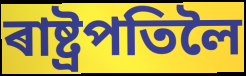
ৰাষ্ট্ৰপতিলৈ